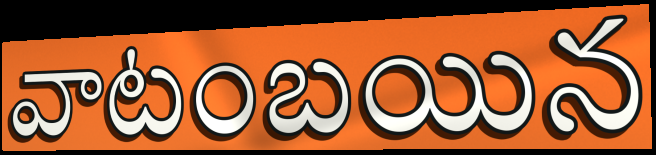
వాటంబయిన